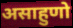
असाहुणो